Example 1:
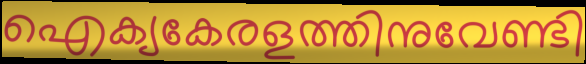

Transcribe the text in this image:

ഐക്യകേരളത്തിനുവേണ്ടി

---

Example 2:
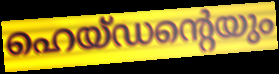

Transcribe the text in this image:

ഹെയ്ഡന്റെയും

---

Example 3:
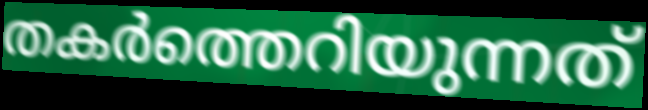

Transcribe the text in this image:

തകർത്തെറിയുന്നത്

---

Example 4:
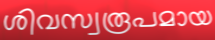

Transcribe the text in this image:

ശിവസ്വരൂപമായ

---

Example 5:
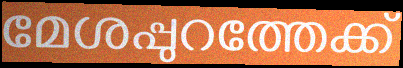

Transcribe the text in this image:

മേശപ്പുറത്തേക്ക്